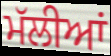
ਮੱਲੀਆਂ